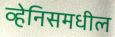
व्हेनिसमधील